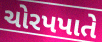
ચોરપપાતે